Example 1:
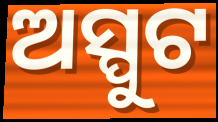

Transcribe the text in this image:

ଅସ୍ପୁଟ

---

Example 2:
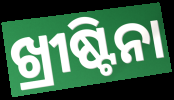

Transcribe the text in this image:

ଖ୍ରୀଷ୍ଟିନା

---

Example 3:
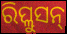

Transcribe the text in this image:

ରିପ୍ଲୁସନ୍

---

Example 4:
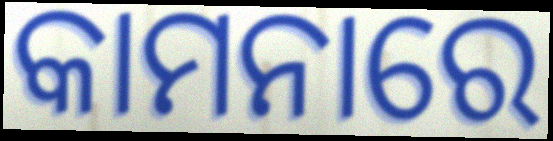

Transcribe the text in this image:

କାମନାରେ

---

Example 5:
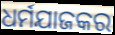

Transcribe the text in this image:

ଧର୍ମଯାଜକର